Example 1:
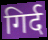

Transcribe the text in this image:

गिर्द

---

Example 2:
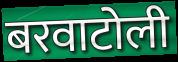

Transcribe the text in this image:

बरवाटोली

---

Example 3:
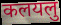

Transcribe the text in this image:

कलयलु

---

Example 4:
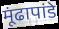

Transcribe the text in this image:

मूंढापांडे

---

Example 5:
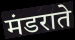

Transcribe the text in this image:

मंडराते